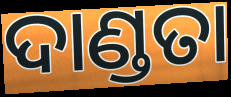
ଦାଣ୍ଡତା